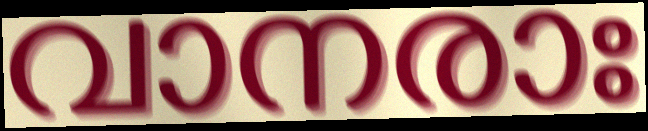
വാനരാഃ